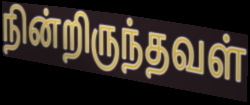
நின்றிருந்தவள்